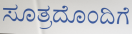
ಸೂತ್ರದೊಂದಿಗೆ